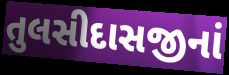
તુલસીદાસજીનાં